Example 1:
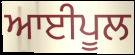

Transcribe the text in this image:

ਆਈਪੂਲ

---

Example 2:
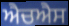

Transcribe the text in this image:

ਐਚਐਸ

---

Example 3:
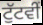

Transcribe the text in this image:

ਟੁੱਟਵੀਂ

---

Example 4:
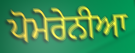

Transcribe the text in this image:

ਪੋਮੇਰੇਨੀਆ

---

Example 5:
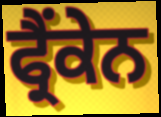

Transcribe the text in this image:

ਫ੍ਰੈਂਕੇਨ